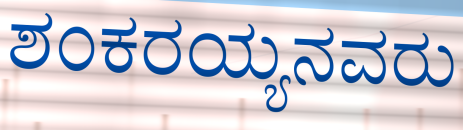
ಶಂಕರಯ್ಯನವರು